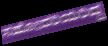
ಸಹೋದರಿಯರಿದ್ದ